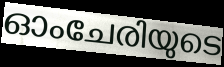
ഓംചേരിയുടെ